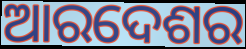
ଆରଦେଶର